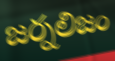
జర్నలిజం